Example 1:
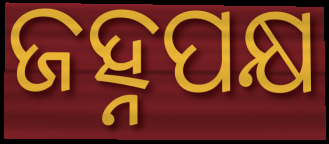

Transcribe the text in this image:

ଜହ୍ନପକ୍ଷ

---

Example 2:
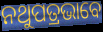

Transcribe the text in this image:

ନଥୁପତ୍ରଭାବେ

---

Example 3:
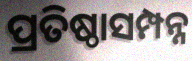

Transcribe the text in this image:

ପ୍ରତିଷ୍ଠାସମ୍ପନ୍ନ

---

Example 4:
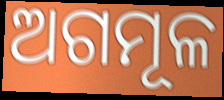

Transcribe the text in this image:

ଅଗମୂଳ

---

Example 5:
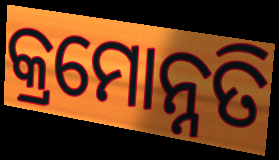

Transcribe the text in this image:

କ୍ରମୋନ୍ନତି